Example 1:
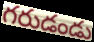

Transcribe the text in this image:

గరుడండు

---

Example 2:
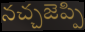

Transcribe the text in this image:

నచ్చజెప్పి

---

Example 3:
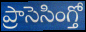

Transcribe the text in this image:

ప్రాసెసింగ్తో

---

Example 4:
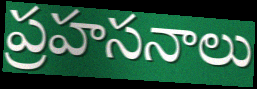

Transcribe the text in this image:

ప్రహసనాలు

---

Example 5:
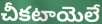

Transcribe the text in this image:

చీకటాయెలే